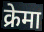
क्रेमा